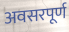
अवसरपूर्ण